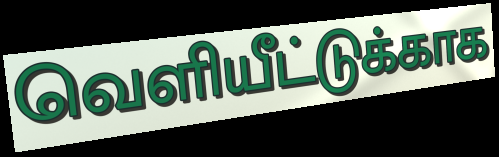
வெளியீட்டுக்காக